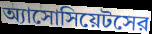
অ্যাসোসিয়েটসের